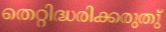
തെറ്റിദ്ധരിക്കരുതു്